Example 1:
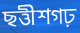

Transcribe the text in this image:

ছত্তীশগঢ়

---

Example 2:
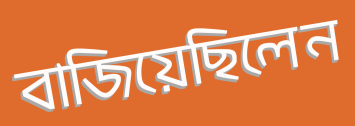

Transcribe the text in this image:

বাজিয়েছিলেন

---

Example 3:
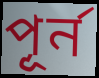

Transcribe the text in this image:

পূর্ন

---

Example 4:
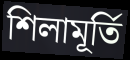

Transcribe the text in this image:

শিলামূর্তি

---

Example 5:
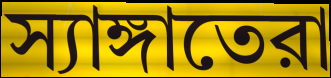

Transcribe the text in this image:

স্যাঙ্গাতেরা